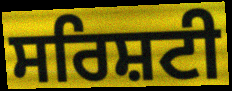
ਸਰਿਸ਼ਟੀ